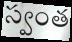
స్వంత